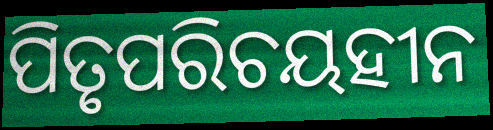
ପିତୃପରିଚୟହୀନ